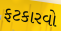
ફટકારવો